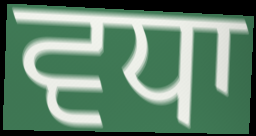
ਵਧਾ